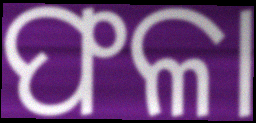
ଫଳା